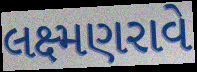
લક્ષ્મણરાવે